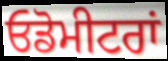
ਓਡੋਮੀਟਰਾਂ